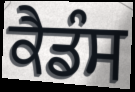
ਕੈਡੰਸ